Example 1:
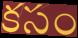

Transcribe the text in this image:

కసం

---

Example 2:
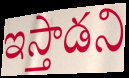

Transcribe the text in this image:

ఇస్తాడని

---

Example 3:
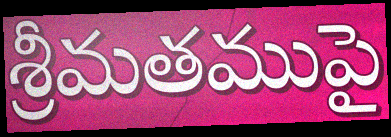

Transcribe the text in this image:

శ్రీమతముపై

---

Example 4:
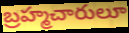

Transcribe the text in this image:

బ్రహ్మచారులూ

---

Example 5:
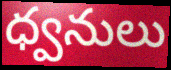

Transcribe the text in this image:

ధ్వనులు